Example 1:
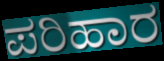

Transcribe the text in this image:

ಪರಿಹಾರ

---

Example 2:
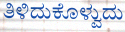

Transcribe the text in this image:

ತಿಳಿದುಕೊಳ್ವುದು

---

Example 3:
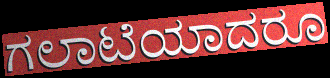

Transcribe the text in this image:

ಗಲಾಟೆಯಾದರೂ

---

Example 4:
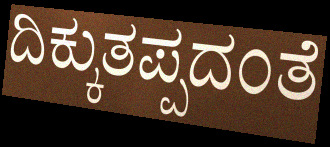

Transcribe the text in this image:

ದಿಕ್ಕುತಪ್ಪದಂತೆ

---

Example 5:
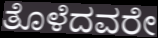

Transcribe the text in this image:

ತೊಳೆದವರೇ